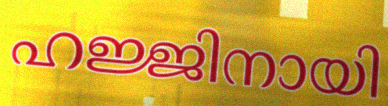
ഹജ്ജിനായി